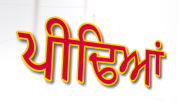
ਪੀਢਿਆਂ